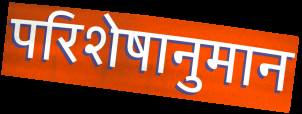
परिशेषानुमान